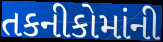
તકનીકોમાંની